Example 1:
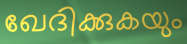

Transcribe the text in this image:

ഖേദിക്കുകയും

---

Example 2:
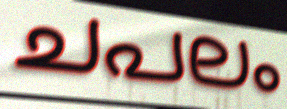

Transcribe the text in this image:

ചപലം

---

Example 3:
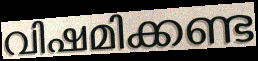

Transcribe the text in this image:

വിഷമിക്കണ്ട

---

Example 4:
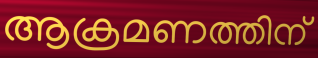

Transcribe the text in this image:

ആക്രമണത്തിന്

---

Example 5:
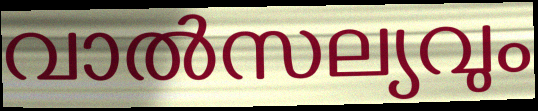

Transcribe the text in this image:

വാൽസല്യവും